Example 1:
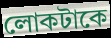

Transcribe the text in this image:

লোকটাকে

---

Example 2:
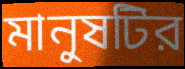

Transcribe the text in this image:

মানুষটির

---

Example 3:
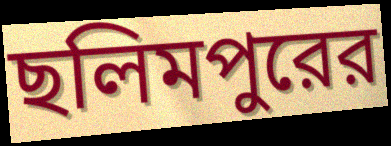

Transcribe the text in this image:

ছলিমপুরের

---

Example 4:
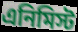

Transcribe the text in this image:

এনিমিস্ট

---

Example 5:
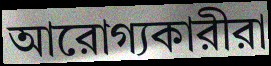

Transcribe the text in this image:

আরোগ্যকারীরা